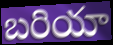
బరియా